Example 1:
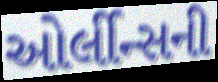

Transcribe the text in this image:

ઓર્લીન્સની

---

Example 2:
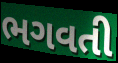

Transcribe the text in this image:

ભગવતી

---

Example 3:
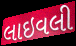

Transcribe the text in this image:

લાઇવલી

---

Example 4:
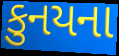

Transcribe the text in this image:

કુનયના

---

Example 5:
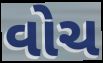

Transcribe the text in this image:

વોચ